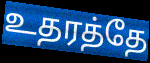
உதரத்தே